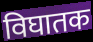
विघातक